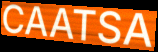
CAATSA